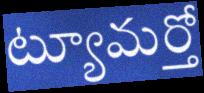
ట్యూమర్తో